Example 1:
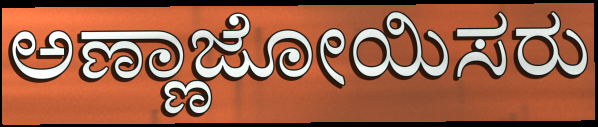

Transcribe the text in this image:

ಅಣ್ಣಾಜೋಯಿಸರು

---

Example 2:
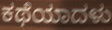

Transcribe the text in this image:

ಕಥೆಯಾದಳು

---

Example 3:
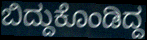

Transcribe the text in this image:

ಬಿದ್ದುಕೊಂಡಿದ್ದ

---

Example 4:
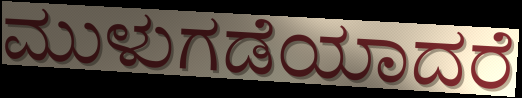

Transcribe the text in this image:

ಮುಳುಗಡೆಯಾದರೆ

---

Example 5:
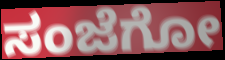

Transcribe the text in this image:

ಸಂಜೆಗೋ